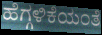
ಹೆಗ್ಗಳಿಕೆಯಂತೆ